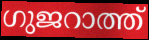
ഗുജറാത്ത്